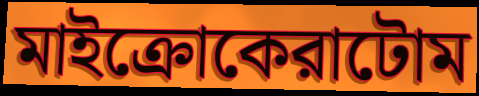
মাইক্রোকেরাটোম